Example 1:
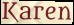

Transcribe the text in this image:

Karen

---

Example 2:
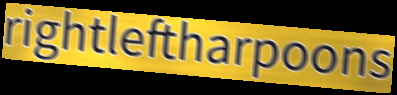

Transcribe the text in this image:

rightleftharpoons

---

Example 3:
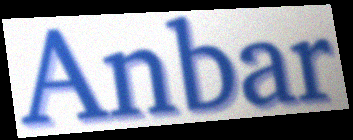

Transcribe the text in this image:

Anbar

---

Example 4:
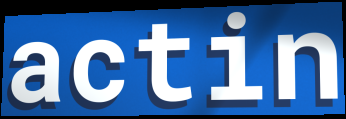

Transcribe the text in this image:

actin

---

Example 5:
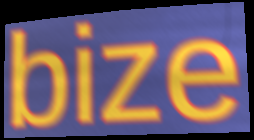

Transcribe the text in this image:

bize